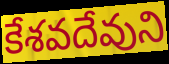
కేశవదేవుని